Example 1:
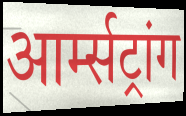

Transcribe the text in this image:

आर्म्सट्रांग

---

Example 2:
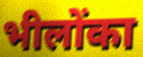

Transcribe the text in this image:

भीलोंका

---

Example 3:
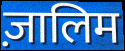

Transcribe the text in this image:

ज़ालिम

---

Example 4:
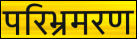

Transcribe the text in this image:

परिभ्रमरण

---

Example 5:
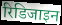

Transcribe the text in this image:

रिडिजाइन